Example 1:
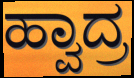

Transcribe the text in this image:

ಹ್ವಾದ್ರ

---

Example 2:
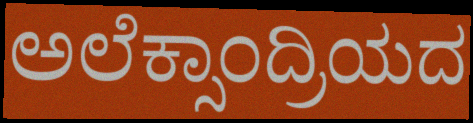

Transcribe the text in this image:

ಅಲೆಕ್ಸಾಂದ್ರಿಯದ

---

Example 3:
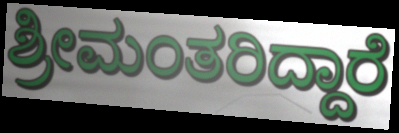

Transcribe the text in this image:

ಶ್ರೀಮಂತರಿದ್ದಾರೆ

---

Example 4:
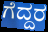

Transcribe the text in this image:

ಗೆದ್ದರ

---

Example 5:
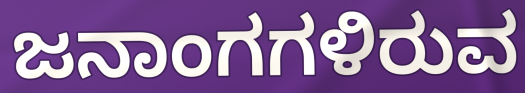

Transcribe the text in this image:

ಜನಾಂಗಗಳಿರುವ